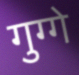
गुग्गे